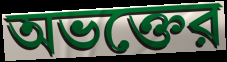
অভক্তের